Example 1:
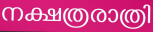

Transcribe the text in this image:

നക്ഷത്രരാത്രി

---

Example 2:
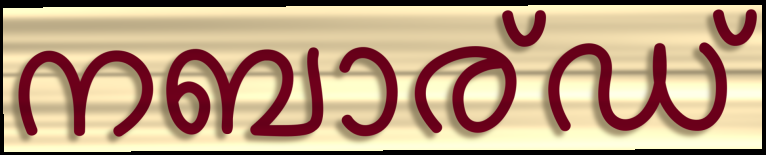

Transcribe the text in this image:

നബാര്ഡ്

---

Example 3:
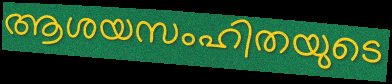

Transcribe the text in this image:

ആശയസംഹിതയുടെ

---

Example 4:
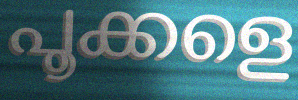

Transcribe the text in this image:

പൂക്കളെ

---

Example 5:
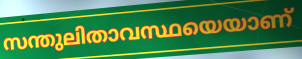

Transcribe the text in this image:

സന്തുലിതാവസ്ഥയെയാണ്